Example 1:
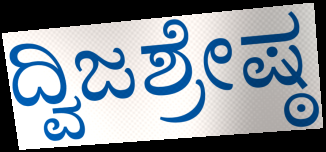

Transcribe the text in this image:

ದ್ವಿಜಶ್ರೇಷ್ಠ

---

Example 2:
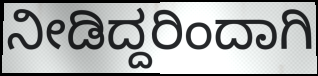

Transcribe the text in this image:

ನೀಡಿದ್ದರಿಂದಾಗಿ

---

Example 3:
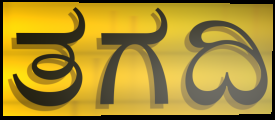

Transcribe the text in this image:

ತಗದಿ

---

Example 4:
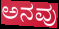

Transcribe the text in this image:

ಅನವು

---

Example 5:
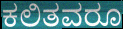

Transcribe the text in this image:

ಕಲಿತವರೂ